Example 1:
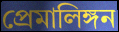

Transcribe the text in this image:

প্রেমালিঙ্গন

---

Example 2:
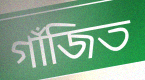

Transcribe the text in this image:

গাঁজিত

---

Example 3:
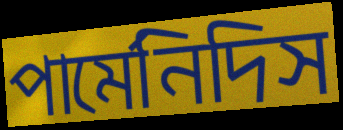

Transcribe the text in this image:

পার্মেনিদিস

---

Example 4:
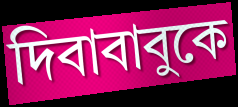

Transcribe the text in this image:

দিবাবাবুকে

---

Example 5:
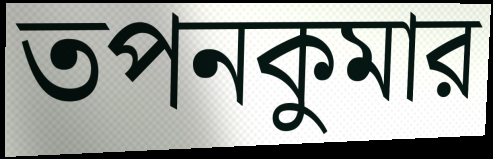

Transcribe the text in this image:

তপনকুমার